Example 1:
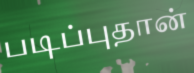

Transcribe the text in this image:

படிப்புதான்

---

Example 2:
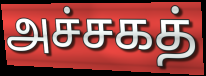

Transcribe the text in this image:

அச்சகத்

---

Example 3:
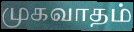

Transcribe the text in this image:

முகவாதம்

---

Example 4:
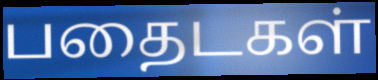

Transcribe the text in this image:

பதைடகள்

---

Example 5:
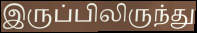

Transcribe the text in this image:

இருப்பிலிருந்து